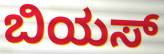
ಬಿಯಸ್